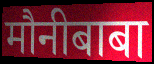
मौनीबाबा